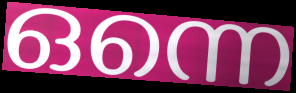
ഒന്നെ